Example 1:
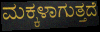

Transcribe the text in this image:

ಮಕ್ಕಳಾಗುತ್ತದೆ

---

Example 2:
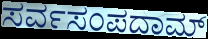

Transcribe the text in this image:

ಸರ್ವಸಂಪದಾಮ್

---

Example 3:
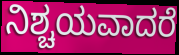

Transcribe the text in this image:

ನಿಶ್ಚಯವಾದರೆ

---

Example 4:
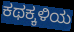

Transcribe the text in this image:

ಕಥಕ್ಕಳಿಯ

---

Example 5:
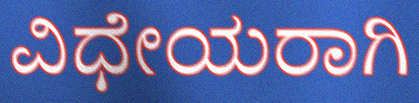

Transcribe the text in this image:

ವಿಧೇಯರಾಗಿ